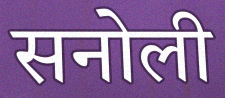
सनोली